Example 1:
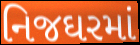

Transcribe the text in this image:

નિજઘરમાં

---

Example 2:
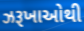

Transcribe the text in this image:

ઝરૂખાઓથી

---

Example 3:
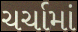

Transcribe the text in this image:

ચર્ચામાં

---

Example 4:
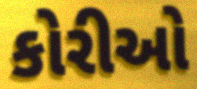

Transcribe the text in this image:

કોરીઓ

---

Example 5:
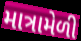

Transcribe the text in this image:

માત્રામેળી